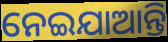
ନେଇଯାଆନ୍ତି